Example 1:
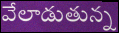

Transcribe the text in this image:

వేలాడుతున్న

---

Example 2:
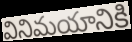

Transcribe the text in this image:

వినిమయానికి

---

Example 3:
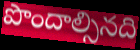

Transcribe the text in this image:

పొందాల్సినది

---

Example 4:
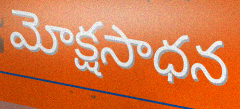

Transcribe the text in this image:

మోక్షసాధన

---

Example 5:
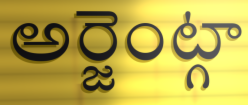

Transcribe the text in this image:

అర్జెంట్గా